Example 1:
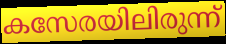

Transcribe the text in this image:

കസേരയിലിരുന്ന്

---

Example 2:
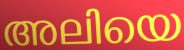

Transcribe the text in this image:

അലിയെ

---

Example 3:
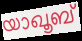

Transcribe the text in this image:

യാഖൂബ്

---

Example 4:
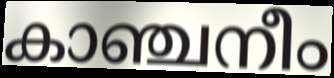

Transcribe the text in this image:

കാഞ്ചനീം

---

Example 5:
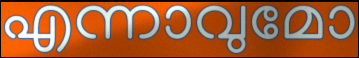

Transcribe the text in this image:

എന്നാവുമോ